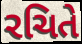
રચિતે